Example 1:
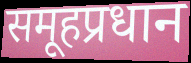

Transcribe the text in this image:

समूहप्रधान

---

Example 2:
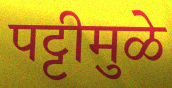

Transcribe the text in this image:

पट्टीमुळे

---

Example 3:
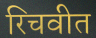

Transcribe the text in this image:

रिचवीत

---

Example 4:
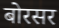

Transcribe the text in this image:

बोरसर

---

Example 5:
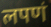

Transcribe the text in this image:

लपणं